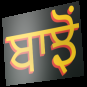
ਬਾਝੋਂ